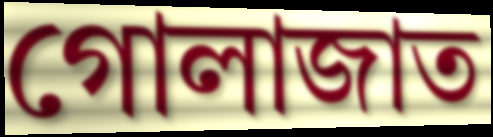
গোলাজাত